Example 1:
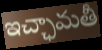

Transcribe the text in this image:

ఇచ్ఛామతీ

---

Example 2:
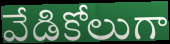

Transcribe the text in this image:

వేడికోలుగా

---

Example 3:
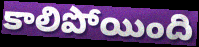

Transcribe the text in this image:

కాలిపోయింది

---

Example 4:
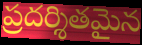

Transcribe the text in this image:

ప్రదర్శితమైన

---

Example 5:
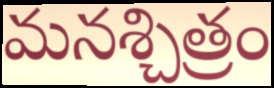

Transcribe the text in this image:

మనశ్చిత్రం